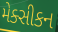
મેક્સીકન